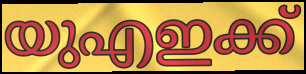
യുഎഇക്ക്